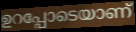
ഉറപ്പോടെയാണ്